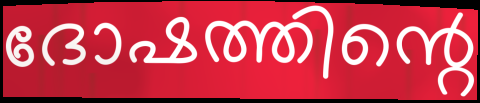
ദോഷത്തിന്റെ